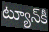
ట్యూన్‌కీ